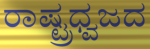
ರಾಷ್ಟ್ರಧ್ವಜದ